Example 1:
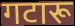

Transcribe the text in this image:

गटारू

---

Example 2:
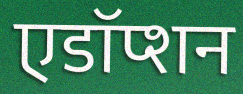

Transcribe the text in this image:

एडॉप्शन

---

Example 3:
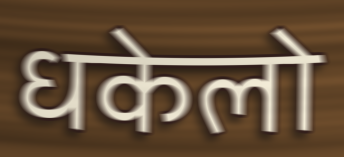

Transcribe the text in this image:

धकेलो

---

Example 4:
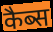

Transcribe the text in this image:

कैब्स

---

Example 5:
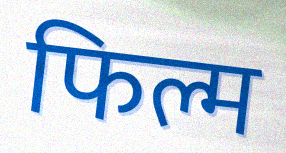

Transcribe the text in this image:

फिल्‍म